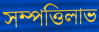
সম্পত্তিলাভ